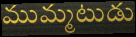
ముమ్మటుడు